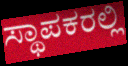
ಸ್ಥಾಪಕರಲ್ಲಿ